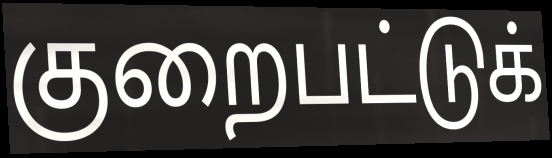
குறைபட்டுக்